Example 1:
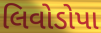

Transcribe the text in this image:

લિવોડોપા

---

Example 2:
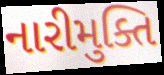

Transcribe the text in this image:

નારીમુક્તિ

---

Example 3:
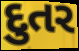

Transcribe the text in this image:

દુતર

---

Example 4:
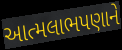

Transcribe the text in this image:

આત્મલાભપણાને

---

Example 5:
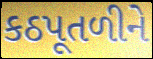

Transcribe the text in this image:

કઠપૂતળીને